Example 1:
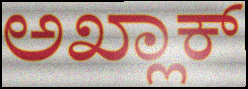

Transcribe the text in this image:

ಅಖ್ಲಾಕ್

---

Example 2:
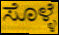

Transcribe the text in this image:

ಸೊಳ್ಳೆ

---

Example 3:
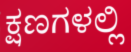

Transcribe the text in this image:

ಕ್ಷಣಗಳಲ್ಲಿ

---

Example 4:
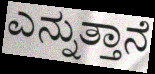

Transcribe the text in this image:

ಎನ್ನುತ್ತಾನೆ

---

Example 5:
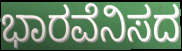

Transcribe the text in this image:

ಭಾರವೆನಿಸದ